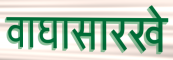
वाघासारखे